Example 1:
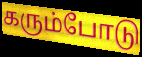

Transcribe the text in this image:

கரும்போடு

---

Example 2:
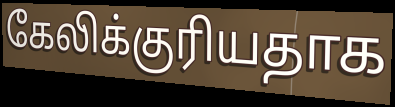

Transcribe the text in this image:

கேலிக்குரியதாக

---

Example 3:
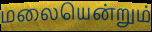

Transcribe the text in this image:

மலையென்றும்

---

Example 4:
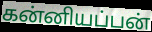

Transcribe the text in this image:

கன்னியப்பன்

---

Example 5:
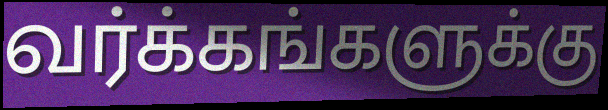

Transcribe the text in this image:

வர்க்கங்களுக்கு